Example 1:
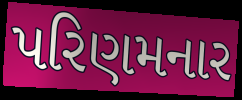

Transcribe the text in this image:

પરિણમનાર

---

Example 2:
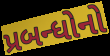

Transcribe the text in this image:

પ્રબન્ધોનો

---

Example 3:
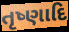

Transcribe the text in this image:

તૃષ્ણાદિ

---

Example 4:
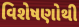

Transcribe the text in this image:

વિશેષણોથી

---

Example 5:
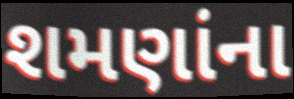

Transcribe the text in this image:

શમણાંના